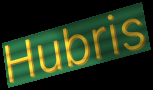
Hubris